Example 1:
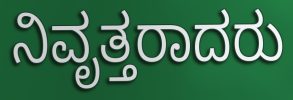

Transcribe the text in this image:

ನಿವೃತ್ತರಾದರು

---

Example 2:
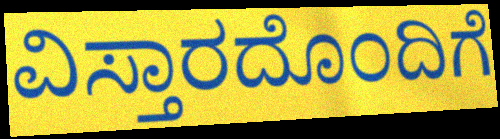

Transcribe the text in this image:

ವಿಸ್ತಾರದೊಂದಿಗೆ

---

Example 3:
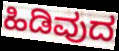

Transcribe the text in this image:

ಹಿಡಿವುದ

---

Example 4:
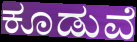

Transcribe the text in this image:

ಕೂಡುವೆ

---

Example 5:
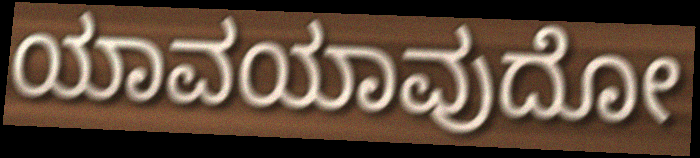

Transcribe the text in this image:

ಯಾವಯಾವುದೋ